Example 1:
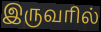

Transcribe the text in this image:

இருவரில்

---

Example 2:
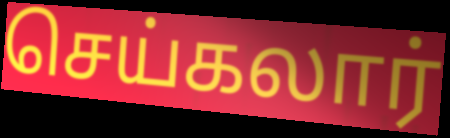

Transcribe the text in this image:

செய்கலார்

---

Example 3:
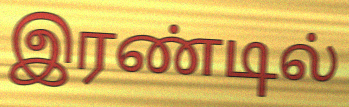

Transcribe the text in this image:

இரண்டில்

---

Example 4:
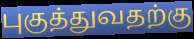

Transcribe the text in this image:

புகுத்துவதற்கு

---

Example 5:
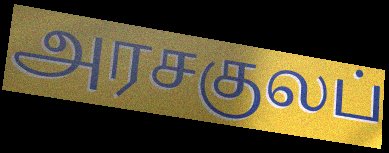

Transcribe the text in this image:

அரசகுலப்